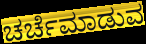
ಚರ್ಚೆಮಾಡುವ